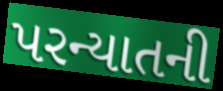
પરન્યાતની